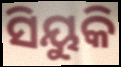
ସିୟୁକି